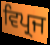
ਵਿਪ੍ਰਜ